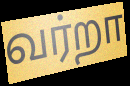
வர்றா